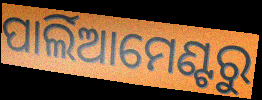
ପାର୍ଲିଆମେଣ୍ଟରୁ